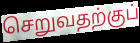
செறுவதற்குப்